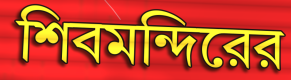
শিবমন্দিরের